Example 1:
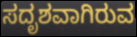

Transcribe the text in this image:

ಸದೃಶವಾಗಿರುವ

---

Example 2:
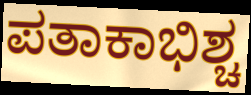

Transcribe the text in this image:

ಪತಾಕಾಭಿಶ್ಚ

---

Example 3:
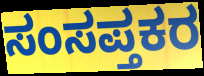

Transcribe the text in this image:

ಸಂಸಪ್ತಕರ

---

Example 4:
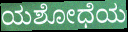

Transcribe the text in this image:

ಯಶೋಧೆಯ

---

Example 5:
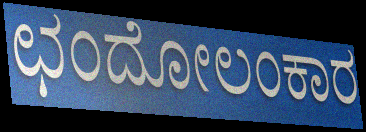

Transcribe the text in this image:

ಛಂದೋಲಂಕಾರ